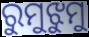
ରୁମୁଝୁମୁ